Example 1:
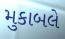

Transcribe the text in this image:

મુકાબલે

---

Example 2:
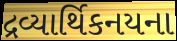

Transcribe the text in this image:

દ્રવ્યાર્થિકનયના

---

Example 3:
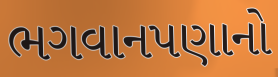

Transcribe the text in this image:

ભગવાનપણાનો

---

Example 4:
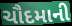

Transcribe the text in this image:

ચૌદમાની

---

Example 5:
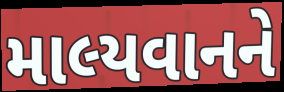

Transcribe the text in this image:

માલ્યવાનને